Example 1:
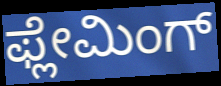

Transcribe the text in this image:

ಫ್ಲೇಮಿಂಗ್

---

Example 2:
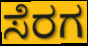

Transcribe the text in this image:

ಸೆರಗ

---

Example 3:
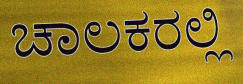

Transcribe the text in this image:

ಚಾಲಕರಲ್ಲಿ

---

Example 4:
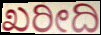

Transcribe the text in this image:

ಖರೀದಿ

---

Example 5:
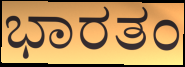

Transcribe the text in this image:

ಭಾರತಂ